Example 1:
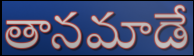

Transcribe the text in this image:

తానమాడే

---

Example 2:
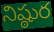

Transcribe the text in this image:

నిష్ఠుర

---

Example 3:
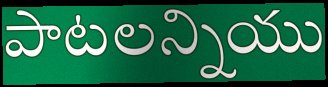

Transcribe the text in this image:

పాటలన్నియు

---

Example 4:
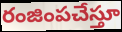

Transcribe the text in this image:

రంజింపచేస్తూ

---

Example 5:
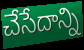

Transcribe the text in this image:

చేసేదాన్ని